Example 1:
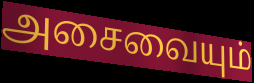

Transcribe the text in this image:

அசைவையும்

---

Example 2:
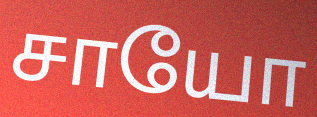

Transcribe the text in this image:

சாயோ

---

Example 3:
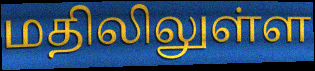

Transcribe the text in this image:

மதிலிலுள்ள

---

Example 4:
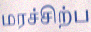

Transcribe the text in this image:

மரச்சிற்ப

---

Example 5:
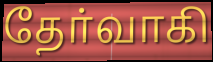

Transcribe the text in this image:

தேர்வாகி